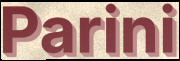
Parini